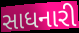
સાધનારી